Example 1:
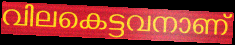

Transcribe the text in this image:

വിലകെട്ടവനാണ്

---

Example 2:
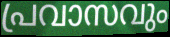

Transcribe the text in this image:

പ്രവാസവും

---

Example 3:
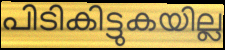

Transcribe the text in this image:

പിടികിട്ടുകയില്ല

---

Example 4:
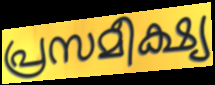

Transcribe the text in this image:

പ്രസമീക്ഷ്യ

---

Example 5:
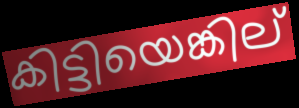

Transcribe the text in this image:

കിട്ടിയെങ്കില്